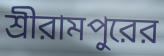
শ্রীরামপুরের